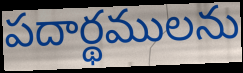
పదార్థములను